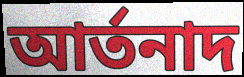
আৰ্তনাদ